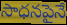
సాధనపైనే